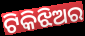
ଟିକିଝିଅର